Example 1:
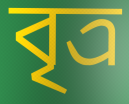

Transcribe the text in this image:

বৃত্ৰ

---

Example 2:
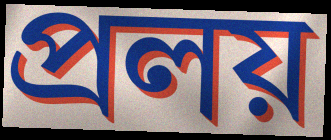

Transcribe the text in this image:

প্ৰলয়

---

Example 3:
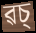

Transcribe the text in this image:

ৱচ্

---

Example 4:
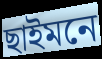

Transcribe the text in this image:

ছাইমনে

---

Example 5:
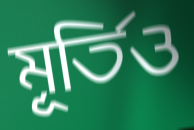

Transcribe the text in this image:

মূৰ্তিও